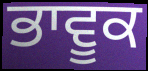
ਭਾਵੂਕ